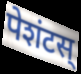
पेशंटस्